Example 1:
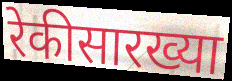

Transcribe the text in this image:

रेकीसारख्या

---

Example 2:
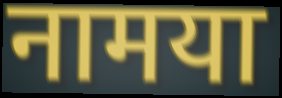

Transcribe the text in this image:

नामया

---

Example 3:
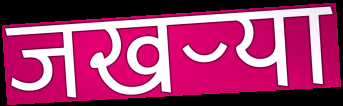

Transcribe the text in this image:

जखऱ्या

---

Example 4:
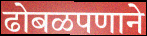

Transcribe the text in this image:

ढोबळपणाने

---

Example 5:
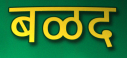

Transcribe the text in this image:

बळद